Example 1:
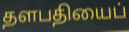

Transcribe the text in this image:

தளபதியைப்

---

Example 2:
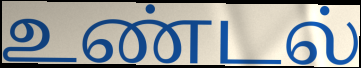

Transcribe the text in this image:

உண்டல்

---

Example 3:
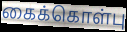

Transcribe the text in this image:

கைக்கொள்பு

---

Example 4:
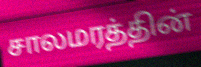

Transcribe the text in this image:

சாலமரத்தின்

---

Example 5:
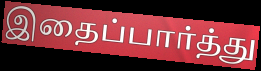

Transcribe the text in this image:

இதைப்பார்த்து